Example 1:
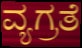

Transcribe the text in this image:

ವ್ಯಗ್ರತೆ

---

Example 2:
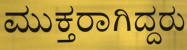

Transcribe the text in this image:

ಮುಕ್ತರಾಗಿದ್ದರು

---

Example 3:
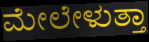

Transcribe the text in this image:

ಮೇಲೇಳುತ್ತಾ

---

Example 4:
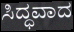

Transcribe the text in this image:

ಸಿದ್ಧವಾದ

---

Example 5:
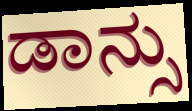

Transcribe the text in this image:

ಡಾನ್ಸು